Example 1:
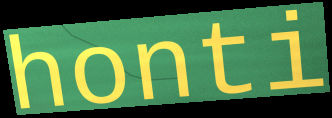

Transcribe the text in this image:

honti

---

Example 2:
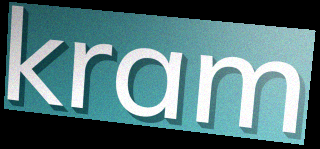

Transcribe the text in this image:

kram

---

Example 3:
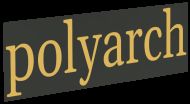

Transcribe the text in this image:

polyarch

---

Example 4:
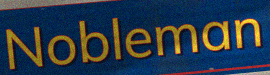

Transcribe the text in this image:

Nobleman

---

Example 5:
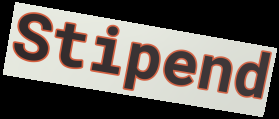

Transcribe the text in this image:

Stipend